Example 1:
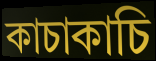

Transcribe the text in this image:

কাচাকাচি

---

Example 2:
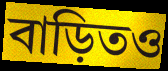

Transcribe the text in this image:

বাড়িতও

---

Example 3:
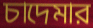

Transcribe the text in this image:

চাদেমার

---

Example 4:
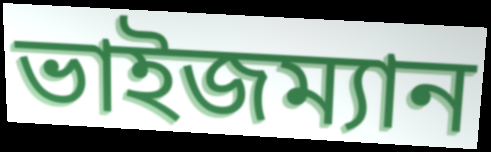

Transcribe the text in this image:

ভাইজম্যান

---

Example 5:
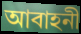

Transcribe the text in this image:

আবাহনী